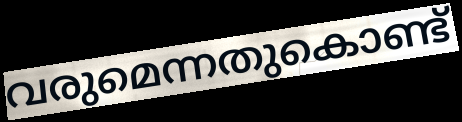
വരുമെന്നതുകൊണ്ട്